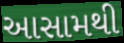
આસામથી